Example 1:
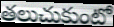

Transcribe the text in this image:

తలుచుకుంటో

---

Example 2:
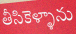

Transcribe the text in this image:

తీసికెళ్ళాను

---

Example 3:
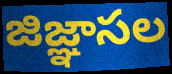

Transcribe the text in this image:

జిజ్ఞాసల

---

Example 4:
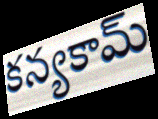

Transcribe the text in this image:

కన్యకామ్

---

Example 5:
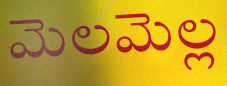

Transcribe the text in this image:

మెలమెల్ల